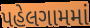
પહેલગામમાં